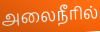
அலைநீரில்